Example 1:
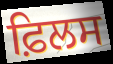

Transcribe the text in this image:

ਫ਼ਿਲਸ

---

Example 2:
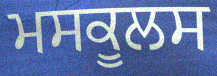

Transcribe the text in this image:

ਮਸਕੂਲਸ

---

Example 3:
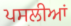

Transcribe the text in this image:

ਪਸਲੀਆਂ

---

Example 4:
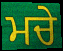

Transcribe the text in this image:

ਮਚੇ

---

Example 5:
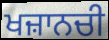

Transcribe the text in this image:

ਖਜ਼ਾਨਚੀ